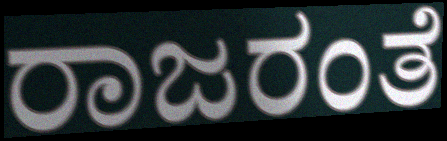
ರಾಜರಂತೆ